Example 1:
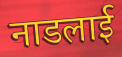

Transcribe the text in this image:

नाडलाई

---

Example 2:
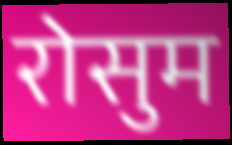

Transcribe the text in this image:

रोसुम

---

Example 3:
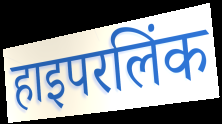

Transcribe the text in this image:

हाइपरलिंक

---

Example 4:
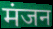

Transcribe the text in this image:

मंजन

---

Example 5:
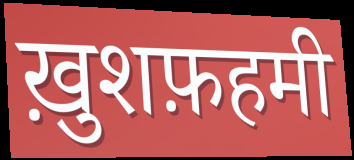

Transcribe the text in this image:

ख़ुशफ़हमी